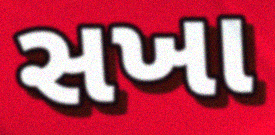
સખા